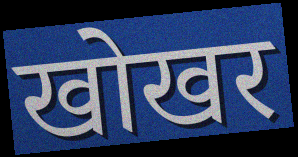
खोखर